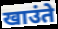
खाउंते